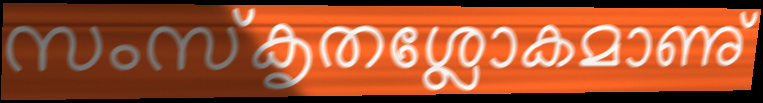
സംസ്കൃതശ്ലോകമാണു്